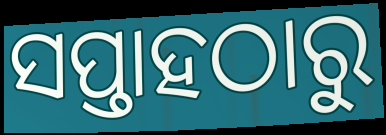
ସପ୍ତାହଠାରୁ